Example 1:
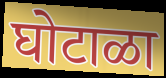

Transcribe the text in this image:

घोटाळा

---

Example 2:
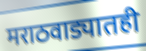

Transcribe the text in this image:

मराठवाड्यातही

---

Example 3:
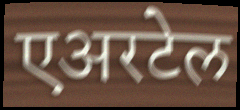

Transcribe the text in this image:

एअरटेल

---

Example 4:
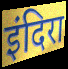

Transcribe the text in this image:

इंदिरा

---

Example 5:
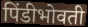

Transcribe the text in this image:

पिंडीभोवती